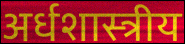
अर्धशास्त्रीय